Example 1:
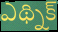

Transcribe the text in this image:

ఎథ్నిక్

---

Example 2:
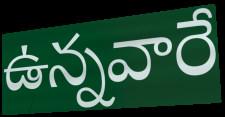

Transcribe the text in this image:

ఉన్నవారే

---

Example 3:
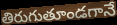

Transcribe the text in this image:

తిరుగుతూండగానే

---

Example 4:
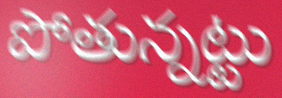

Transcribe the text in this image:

పోతున్నట్టు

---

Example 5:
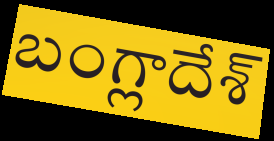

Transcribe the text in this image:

బంగ్లాదేశ్